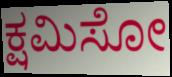
ಕ್ಷಮಿಸೋ